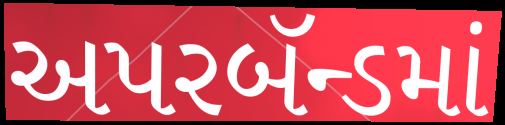
અપરબૅન્ડમાં